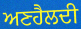
ਅਣਹੈਲਦੀ